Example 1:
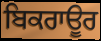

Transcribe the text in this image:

ਬਿਕਰਾਊਰ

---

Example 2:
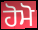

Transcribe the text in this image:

ਹੋਮੋ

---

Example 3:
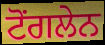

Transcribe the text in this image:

ਟੋਂਗਲੇਨ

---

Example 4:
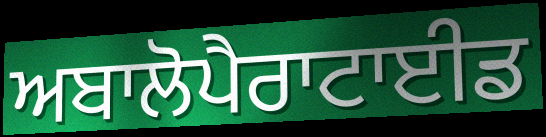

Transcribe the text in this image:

ਅਬਾਲੋਪੈਰਾਟਾਈਡ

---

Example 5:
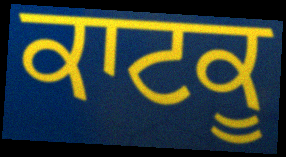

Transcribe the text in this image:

ਕਾਟਕੂ